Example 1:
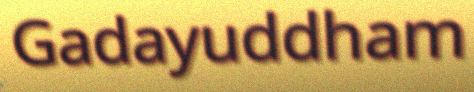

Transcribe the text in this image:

Gadayuddham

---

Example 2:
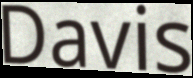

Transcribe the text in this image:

Davis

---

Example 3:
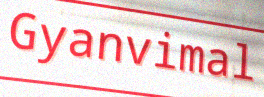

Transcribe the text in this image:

Gyanvimal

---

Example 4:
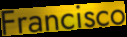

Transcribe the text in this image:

Francisco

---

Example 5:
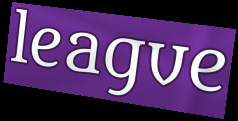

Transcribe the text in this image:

league